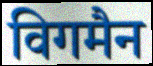
विगमैन